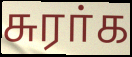
சுரர்க